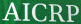
AICRP